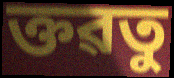
ক্তৱতু